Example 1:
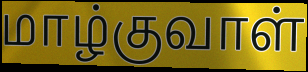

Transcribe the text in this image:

மாழ்குவாள்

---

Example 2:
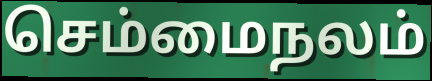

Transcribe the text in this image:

செம்மைநலம்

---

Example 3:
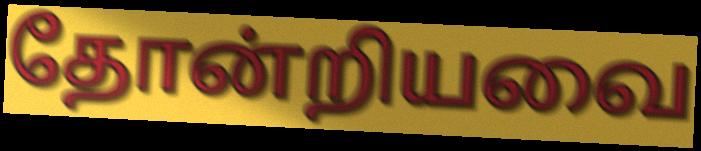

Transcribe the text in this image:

தோன்றியவை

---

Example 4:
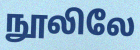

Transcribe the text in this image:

நூலிலே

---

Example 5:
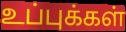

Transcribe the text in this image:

உப்புக்கள்